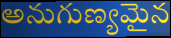
అనుగుణ్యమైన